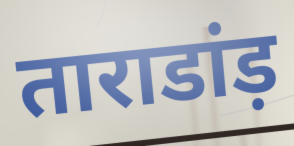
ताराडांड़